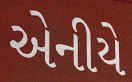
એનીયે